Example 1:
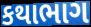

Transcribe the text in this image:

કથાભાગ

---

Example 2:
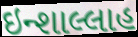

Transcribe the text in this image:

ઇન્શાલ્લાહ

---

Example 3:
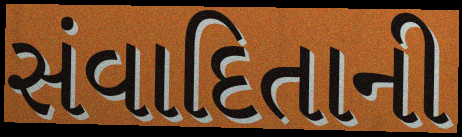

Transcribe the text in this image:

સંવાદિતાની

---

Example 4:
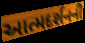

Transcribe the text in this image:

આત્મદર્શનની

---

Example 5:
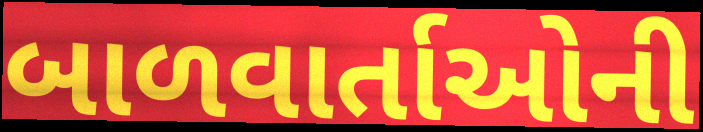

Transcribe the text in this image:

બાળવાર્તાઓની